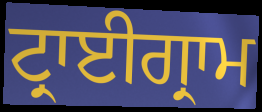
ਟ੍ਰਾਈਗ੍ਰਾਮ